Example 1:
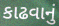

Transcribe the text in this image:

કાઢવાનું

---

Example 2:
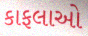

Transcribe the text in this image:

કાફલાઓ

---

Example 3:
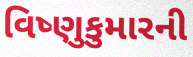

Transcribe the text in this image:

વિષ્ણુકુમારની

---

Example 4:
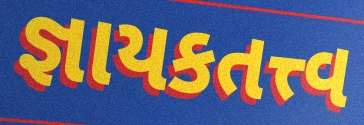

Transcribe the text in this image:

જ્ઞાયકતત્ત્વ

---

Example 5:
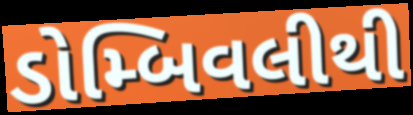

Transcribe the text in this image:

ડોમ્બિવલીથી